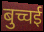
बुच्चई